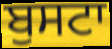
ਬੁਸਟਾ